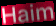
Haim